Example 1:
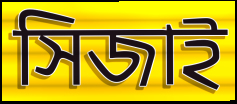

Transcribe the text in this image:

সিজাই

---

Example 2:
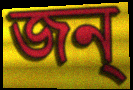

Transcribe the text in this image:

জন্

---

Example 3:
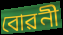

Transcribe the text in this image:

বোৱনী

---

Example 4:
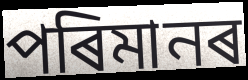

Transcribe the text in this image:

পৰিমানৰ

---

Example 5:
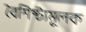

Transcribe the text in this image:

বৈশিষ্ট্যমূলক